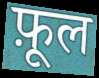
फ़ूल